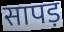
सापड़